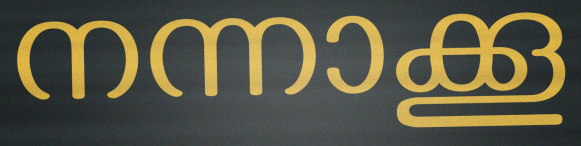
നന്നാക്കൂ